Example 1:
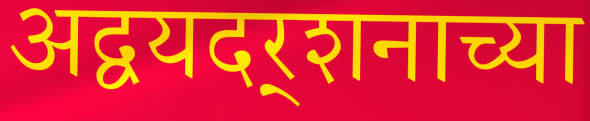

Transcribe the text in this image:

अद्वयदर्शनाच्या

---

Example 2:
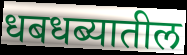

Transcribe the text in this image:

धबधब्यातील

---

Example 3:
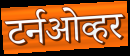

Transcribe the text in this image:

टर्नओव्हर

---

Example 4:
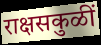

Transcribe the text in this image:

राक्षसकुळीं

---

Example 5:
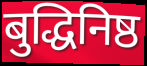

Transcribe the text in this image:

बुद्धिनिष्ठ